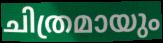
ചിത്രമായും